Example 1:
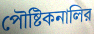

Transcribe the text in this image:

পৌষ্টিকনালির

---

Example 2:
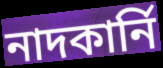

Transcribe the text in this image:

নাদকার্নি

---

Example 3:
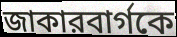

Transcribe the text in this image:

জাকারবার্গকে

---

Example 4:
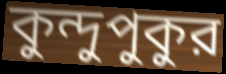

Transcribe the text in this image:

কুন্দুপুকুর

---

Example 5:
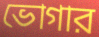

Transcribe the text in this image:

ভোগার